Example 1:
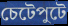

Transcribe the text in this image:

চেটেপুটে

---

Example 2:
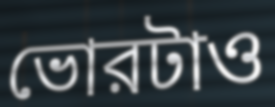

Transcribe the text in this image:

ভোরটাও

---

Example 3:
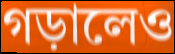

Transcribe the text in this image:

গড়ালেও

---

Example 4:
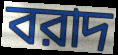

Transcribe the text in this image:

বরাদ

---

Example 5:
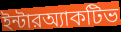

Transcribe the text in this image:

ইন্টারঅ্যাকটিভ